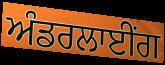
ਅੰਡਰਲਾਈੰਗ